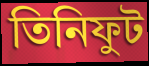
তিনিফুট